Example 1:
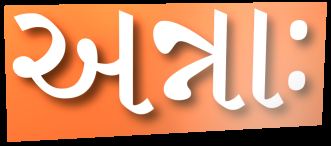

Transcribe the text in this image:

અન્નાઃ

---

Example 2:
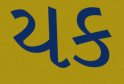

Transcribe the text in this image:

યક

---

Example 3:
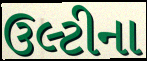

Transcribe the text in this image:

ઉલ્ટીના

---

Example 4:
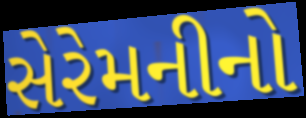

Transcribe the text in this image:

સેરેમનીનો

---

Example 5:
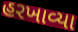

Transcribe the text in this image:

હરખાવ્યા